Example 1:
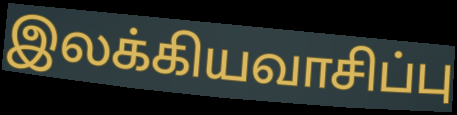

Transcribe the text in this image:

இலக்கியவாசிப்பு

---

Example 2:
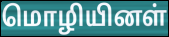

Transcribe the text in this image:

மொழியினள்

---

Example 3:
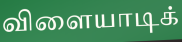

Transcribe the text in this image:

விளையாடிக்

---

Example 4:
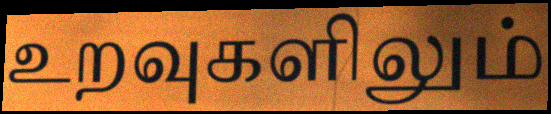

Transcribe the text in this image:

உறவுகளிலும்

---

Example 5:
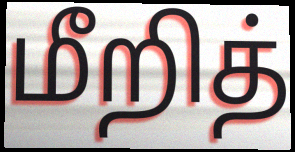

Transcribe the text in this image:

மீறித்